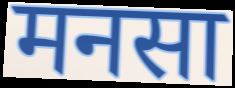
मनसा